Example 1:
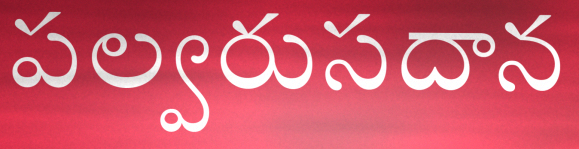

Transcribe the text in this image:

పల్వరుసదాన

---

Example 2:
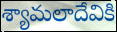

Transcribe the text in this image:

శ్యామలాదేవికి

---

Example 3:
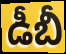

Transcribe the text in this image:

డీబీ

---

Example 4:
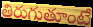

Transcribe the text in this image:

తిరుగుతూంటే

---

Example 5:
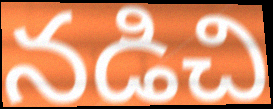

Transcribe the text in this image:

నడిచి